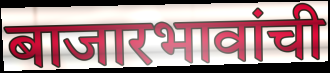
बाजारभावांची